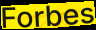
Forbes